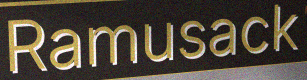
Ramusack